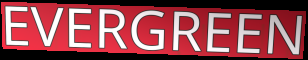
EVERGREEN